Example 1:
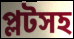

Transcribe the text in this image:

প্লটসহ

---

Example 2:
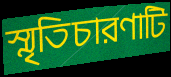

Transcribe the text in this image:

স্মৃতিচারণাটি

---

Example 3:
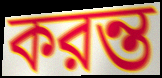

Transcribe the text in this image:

করন্ত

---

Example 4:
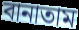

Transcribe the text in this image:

বানাতাম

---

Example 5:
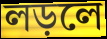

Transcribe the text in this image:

লড়লে